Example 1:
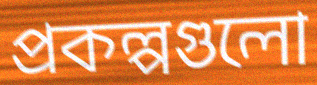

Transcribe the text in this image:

প্রকল্পগুলো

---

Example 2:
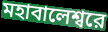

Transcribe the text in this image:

মহাবালেশ্বরে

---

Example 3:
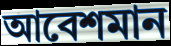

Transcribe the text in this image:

আবেশমান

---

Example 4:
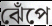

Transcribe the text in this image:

ঝেঁপে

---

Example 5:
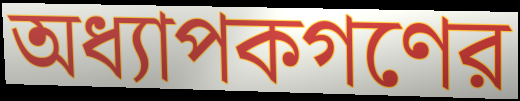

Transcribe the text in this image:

অধ্যাপকগণের